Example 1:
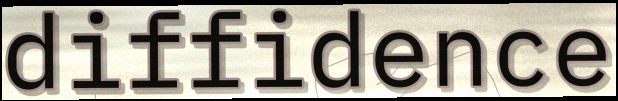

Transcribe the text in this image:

diffidence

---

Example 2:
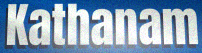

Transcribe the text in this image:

Kathanam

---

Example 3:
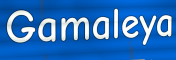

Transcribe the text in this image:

Gamaleya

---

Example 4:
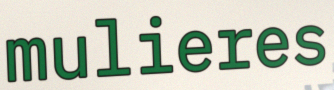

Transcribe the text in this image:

mulieres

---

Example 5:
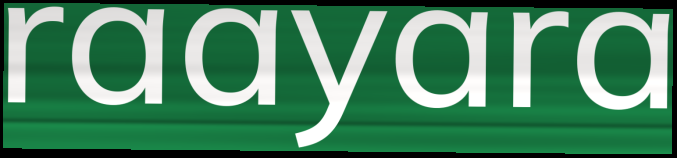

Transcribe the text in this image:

raayara